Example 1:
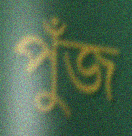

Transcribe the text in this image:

পুঁজ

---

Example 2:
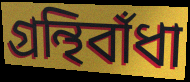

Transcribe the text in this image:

গ্রন্থিবাঁধা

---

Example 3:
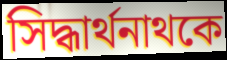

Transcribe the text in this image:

সিদ্ধার্থনাথকে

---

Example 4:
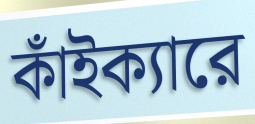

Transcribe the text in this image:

কাঁইক্যারে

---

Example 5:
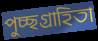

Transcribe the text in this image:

পুচ্ছগ্রাহিতা